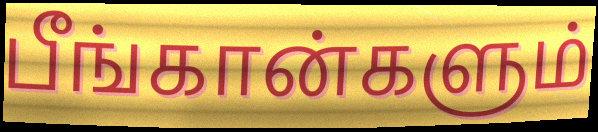
பீங்கான்களும்